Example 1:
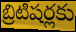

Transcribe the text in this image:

బ్రిటిషర్లకు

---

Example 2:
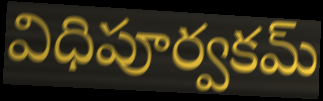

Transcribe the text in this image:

విధిపూర్వకమ్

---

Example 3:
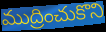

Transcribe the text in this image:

ముద్రించుకొని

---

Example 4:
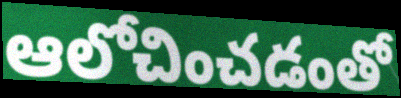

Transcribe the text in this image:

ఆలోచించడంతో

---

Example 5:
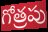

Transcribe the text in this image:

గోత్రపు